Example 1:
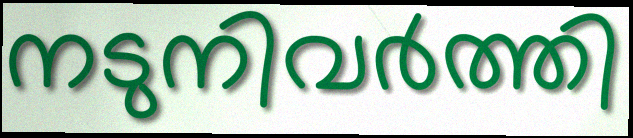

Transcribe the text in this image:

നടുനിവർത്തി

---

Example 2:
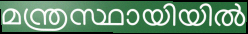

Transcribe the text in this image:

മന്ത്രസ്ഥായിയിൽ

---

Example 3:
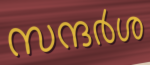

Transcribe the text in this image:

സന്ദർശ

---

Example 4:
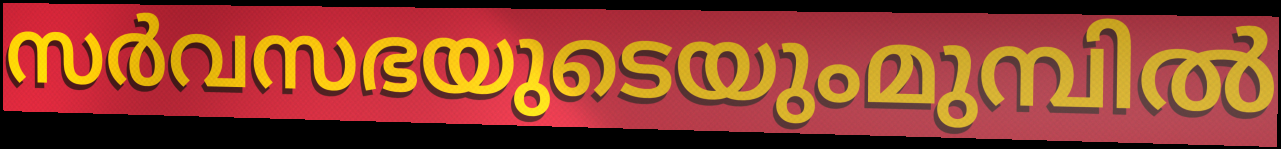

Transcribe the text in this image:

സർവസഭയുടെയുംമുമ്പിൽ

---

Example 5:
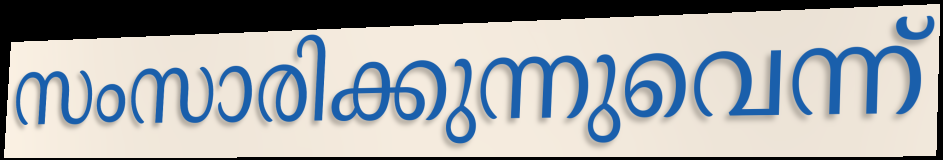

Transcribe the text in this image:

സംസാരിക്കുന്നുവെന്ന്